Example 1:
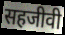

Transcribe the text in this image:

सहजीवी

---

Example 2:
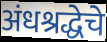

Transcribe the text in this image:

अंधश्रद्धेचे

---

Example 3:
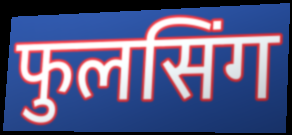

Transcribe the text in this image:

फुलसिंग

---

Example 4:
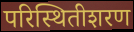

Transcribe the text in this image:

परिस्थितीशरण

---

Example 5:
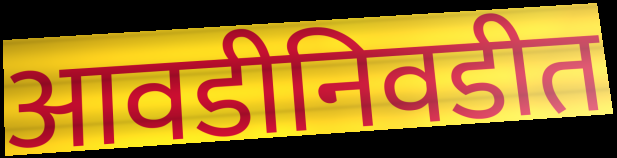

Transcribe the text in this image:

आवडीनिवडीत